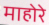
माहोरे